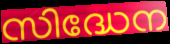
സിദ്ധേന